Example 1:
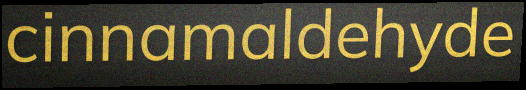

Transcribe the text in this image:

cinnamaldehyde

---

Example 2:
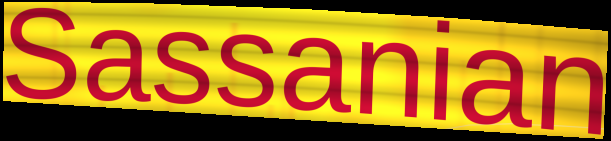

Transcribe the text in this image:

Sassanian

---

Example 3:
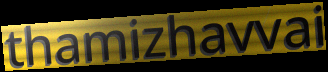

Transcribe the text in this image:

thamizhavvai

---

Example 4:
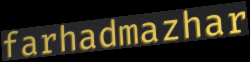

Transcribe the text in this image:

farhadmazhar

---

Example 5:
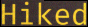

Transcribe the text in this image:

Hiked